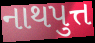
નાથપુત્ત